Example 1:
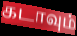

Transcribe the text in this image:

கடாவும்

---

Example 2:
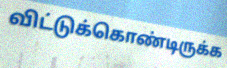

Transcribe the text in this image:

விட்டுக்கொண்டிருக்க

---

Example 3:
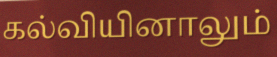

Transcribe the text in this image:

கல்வியினாலும்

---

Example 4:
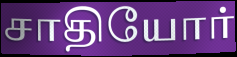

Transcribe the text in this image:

சாதியோர்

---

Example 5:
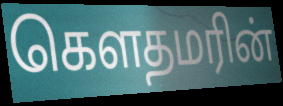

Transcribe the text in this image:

கௌதமரின்